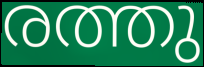
രത്തു